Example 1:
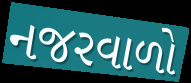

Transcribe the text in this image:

નજરવાળો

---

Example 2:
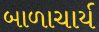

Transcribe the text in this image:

બાળાચાર્ય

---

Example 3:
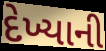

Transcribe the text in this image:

દેખ્યાની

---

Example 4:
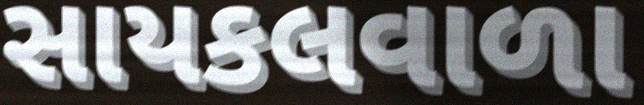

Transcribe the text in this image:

સાયકલવાળા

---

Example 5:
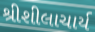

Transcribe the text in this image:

શ્રીશીલાચાર્ય